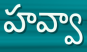
హవ్వా